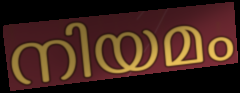
നിയമം